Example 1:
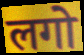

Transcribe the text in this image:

लगो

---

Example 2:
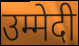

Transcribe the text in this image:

उम्मेदी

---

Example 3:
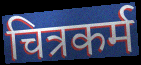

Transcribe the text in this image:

चित्रकर्म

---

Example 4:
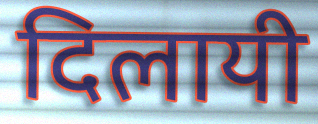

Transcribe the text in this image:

दिलायी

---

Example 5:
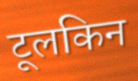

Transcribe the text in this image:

टूलकिन